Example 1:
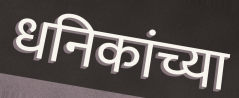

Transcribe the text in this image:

धनिकांच्या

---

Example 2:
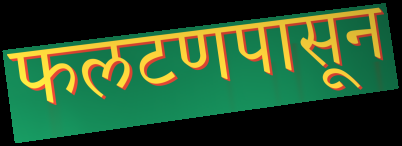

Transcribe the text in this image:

फलटणपासून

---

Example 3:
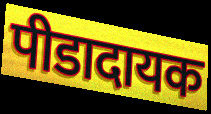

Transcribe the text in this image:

पीडादायक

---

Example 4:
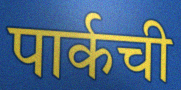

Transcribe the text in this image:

पार्कची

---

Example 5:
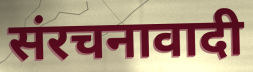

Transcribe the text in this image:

संरचनावादी